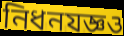
নিধনযজ্ঞও